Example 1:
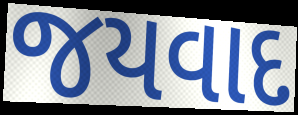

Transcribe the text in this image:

જયવાદ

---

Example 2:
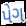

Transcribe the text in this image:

પેગ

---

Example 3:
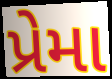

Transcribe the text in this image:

પ્રેમા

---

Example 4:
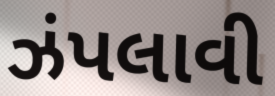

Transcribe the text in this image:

ઝંપલાવી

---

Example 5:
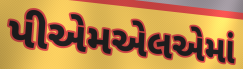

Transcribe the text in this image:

પીએમએલએમાં